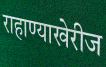
राहाण्याखेरीज